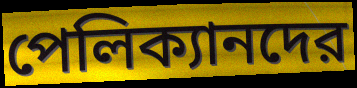
পেলিক্যানদের